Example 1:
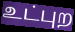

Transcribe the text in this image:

உட்புற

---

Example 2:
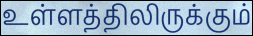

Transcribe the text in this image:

உள்ளத்திலிருக்கும்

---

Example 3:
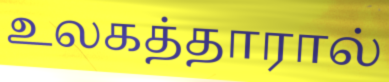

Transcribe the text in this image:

உலகத்தாரால்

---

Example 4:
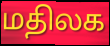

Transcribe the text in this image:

மதிலக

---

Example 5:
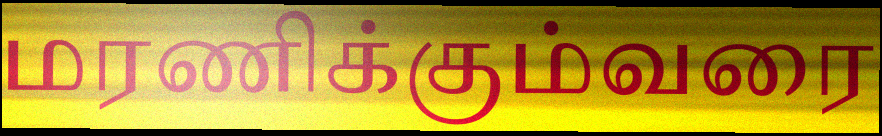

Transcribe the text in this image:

மரணிக்கும்வரை